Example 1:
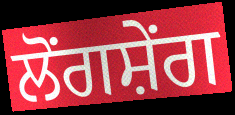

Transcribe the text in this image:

ਲੋਂਗਸ਼ੇਂਗ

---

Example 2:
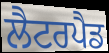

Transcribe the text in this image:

ਲੈਟਰਪੈਡ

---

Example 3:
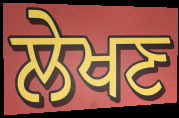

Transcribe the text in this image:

ਲੇਖਣ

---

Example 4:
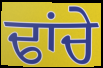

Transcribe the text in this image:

ਢਾਂਚੇ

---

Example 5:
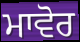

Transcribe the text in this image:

ਮਾਵੋਰ